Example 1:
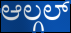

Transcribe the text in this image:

ಆಲ್ಗಲ್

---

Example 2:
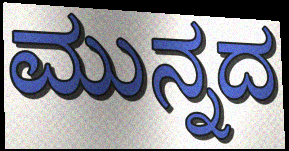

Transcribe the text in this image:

ಮುನ್ನದ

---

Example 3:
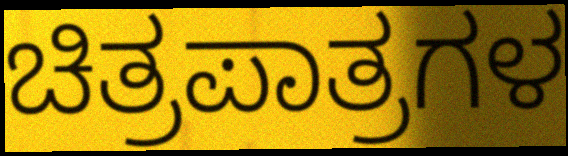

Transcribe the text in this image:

ಚಿತ್ರಪಾತ್ರಗಳ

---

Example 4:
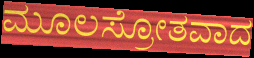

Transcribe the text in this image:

ಮೂಲಸ್ರೋತವಾದ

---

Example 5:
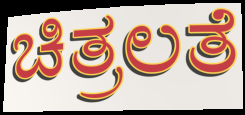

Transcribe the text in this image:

ಚಿತ್ರಲತೆ